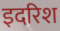
इदरिश